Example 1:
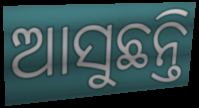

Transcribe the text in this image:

ଆସୁଛନ୍ତି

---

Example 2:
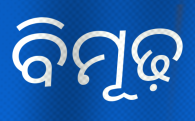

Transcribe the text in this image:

ବିମୂଢ଼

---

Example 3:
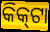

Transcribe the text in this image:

କିକ୍‍ଟା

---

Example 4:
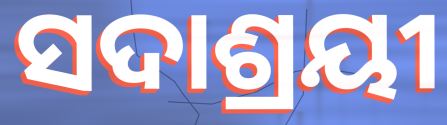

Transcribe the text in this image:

ସଦାଶ୍ରୟୀ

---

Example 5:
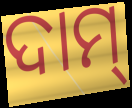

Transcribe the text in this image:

ଦାମ୍